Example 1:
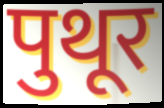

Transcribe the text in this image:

पुथूर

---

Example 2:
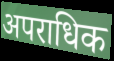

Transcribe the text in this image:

अपराधिक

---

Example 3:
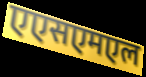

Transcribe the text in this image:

एएसएमएल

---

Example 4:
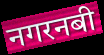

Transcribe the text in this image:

नगरनबी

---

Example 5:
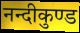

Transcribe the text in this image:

नन्दीकुण्ड